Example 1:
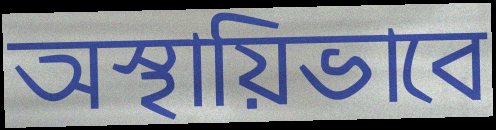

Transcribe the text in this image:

অস্থায়িভাবে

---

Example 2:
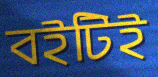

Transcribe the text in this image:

বইটিই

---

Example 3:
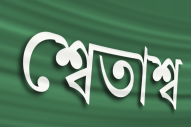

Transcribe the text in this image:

শ্বেতাশ্ব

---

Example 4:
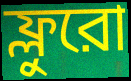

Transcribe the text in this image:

ফ্লুরো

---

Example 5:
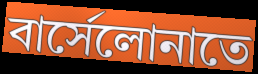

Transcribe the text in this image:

বার্সেলোনাতে